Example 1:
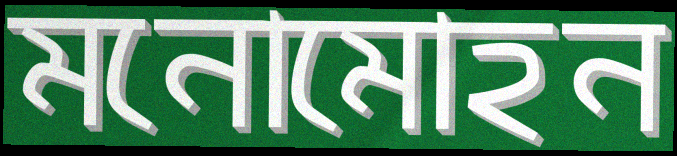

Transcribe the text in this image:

মনোমোহন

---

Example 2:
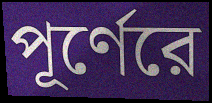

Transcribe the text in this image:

পূর্ণেরে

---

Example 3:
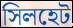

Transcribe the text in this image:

সিলহেট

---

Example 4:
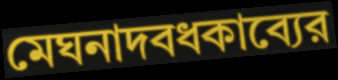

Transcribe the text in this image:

মেঘনাদবধকাব্যের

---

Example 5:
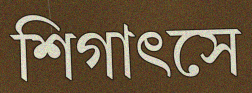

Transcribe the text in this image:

শিগাৎসে